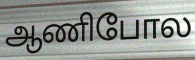
ஆணிபோல